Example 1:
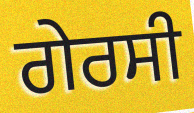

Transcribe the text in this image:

ਗੇਰਸੀ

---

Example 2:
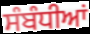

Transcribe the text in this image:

ਸੰਬੰਧੀਆਂ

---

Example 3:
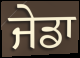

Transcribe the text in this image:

ਜੇਡਾ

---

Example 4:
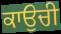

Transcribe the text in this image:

ਕਾਉਚੀ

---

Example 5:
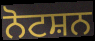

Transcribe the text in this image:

ਨੋਟਸ਼ਨ